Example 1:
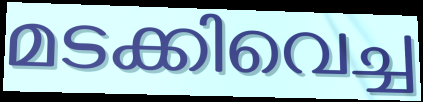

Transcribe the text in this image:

മടക്കിവെച്ച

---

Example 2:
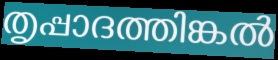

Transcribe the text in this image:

തൃപ്പാദത്തിങ്കൽ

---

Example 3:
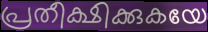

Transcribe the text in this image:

പ്രതീക്ഷിക്കുകയേ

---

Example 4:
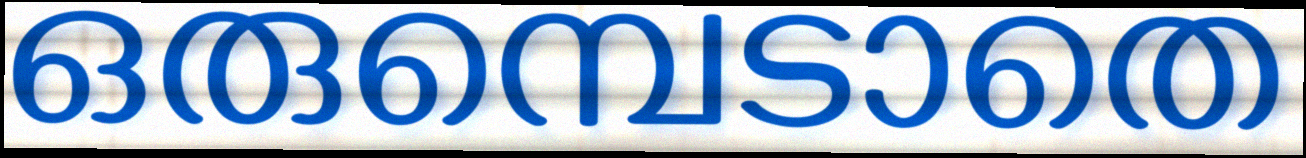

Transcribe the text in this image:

ഒരുമ്പെടാതെ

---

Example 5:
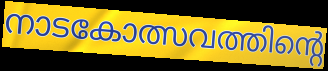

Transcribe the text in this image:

നാടകോത്സവത്തിന്റെ